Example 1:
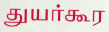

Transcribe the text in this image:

துயர்கூர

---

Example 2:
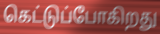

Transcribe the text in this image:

கெட்டுப்போகிறது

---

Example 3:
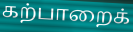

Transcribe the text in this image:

கற்பாறைக்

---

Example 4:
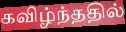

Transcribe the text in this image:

கவிழ்ந்ததில்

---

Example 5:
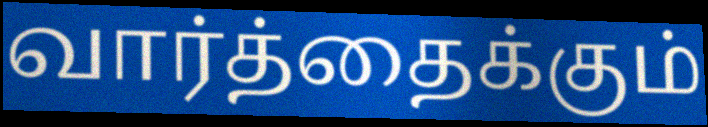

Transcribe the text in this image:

வார்த்தைக்கும்